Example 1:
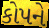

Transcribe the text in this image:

કોપને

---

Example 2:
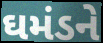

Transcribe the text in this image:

ઘમંડને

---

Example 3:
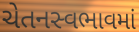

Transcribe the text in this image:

ચેતનસ્વભાવમાં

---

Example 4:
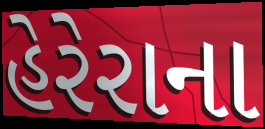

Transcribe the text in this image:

હેરેરાના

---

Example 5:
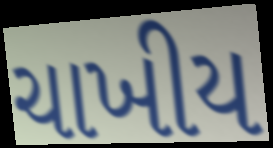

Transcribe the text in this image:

ચાખીય